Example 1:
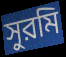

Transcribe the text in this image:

সুরমি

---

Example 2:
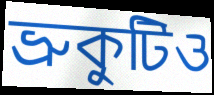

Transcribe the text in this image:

ভ্রুকুটিও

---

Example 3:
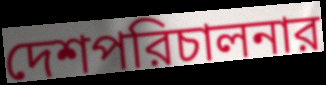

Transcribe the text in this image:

দেশপরিচালনার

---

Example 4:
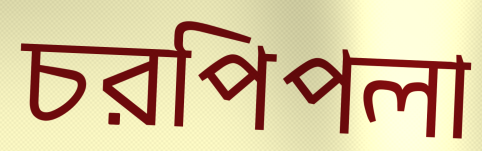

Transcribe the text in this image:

চরপিপলা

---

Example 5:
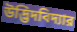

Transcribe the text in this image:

উদ্ভিদবিদ্যার